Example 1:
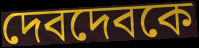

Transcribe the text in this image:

দেবদেবকে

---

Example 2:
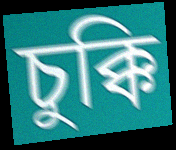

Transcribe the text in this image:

চুক্কি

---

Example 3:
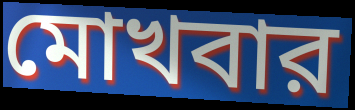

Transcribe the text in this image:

মোখবার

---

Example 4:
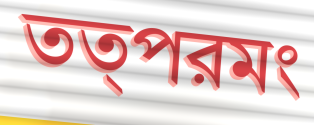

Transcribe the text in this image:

তত্পরমং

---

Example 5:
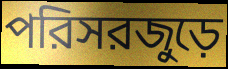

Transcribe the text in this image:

পরিসরজুড়ে